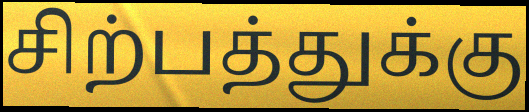
சிற்பத்துக்கு